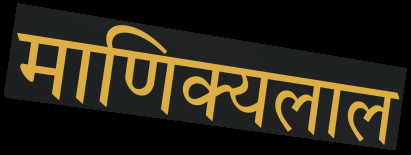
माणिक्यलाल